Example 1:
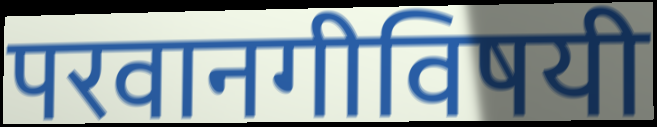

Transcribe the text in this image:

परवानगीविषयी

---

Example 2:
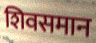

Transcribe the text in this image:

शिवसमान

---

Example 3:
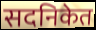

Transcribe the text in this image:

सदनिकेत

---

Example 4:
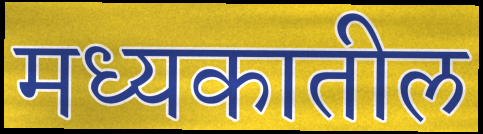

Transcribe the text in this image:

मध्यकातील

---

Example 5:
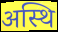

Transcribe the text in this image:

अस्थि